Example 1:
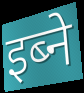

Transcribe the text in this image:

इब्ने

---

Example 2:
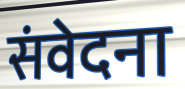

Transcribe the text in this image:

संवेदना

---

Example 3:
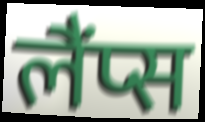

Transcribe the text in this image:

लैंप्स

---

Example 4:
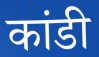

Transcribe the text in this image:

कांडी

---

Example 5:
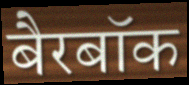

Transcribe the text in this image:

बैरबॉक